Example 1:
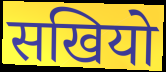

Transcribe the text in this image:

सखियो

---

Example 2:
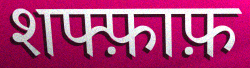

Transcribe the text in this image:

शफ्फ़ाफ़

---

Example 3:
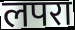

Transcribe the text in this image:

लपरा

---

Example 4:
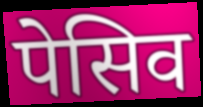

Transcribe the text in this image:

पेसिव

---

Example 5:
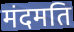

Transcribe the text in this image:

मंदमति